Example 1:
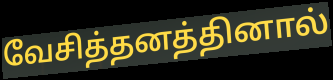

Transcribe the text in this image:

வேசித்தனத்தினால்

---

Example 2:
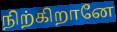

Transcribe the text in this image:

நிற்கிறானே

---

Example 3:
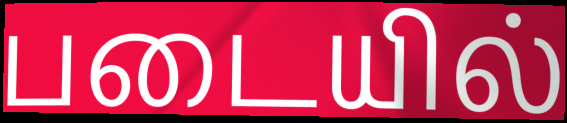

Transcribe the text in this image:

படையில்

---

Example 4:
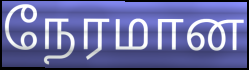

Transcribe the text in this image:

நேரமான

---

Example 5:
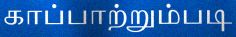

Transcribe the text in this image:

காப்பாற்றும்படி